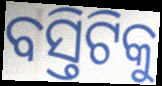
ବସ୍ତିଟିକୁ